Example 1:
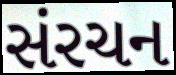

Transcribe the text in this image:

સંરચન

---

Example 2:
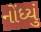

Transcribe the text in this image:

નોંધ્યું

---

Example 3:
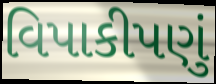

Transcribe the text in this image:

વિપાકીપણું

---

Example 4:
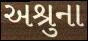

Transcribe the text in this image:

અશ્રુના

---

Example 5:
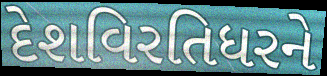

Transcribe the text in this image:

દેશવિરતિધરને